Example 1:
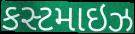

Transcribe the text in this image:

કસ્ટમાઇઝ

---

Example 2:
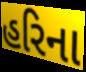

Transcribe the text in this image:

હરિના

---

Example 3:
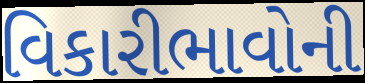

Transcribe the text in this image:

વિકારીભાવોની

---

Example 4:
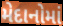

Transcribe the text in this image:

મેદાનોમાં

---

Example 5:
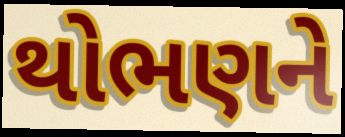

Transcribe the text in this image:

થોભણને